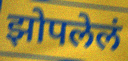
झोपलेलं